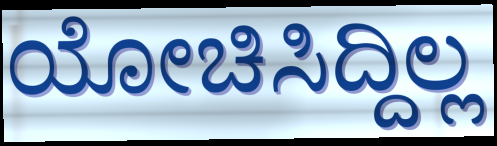
ಯೋಚಿಸಿದ್ದಿಲ್ಲ